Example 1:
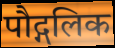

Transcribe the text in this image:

पौद्गलिक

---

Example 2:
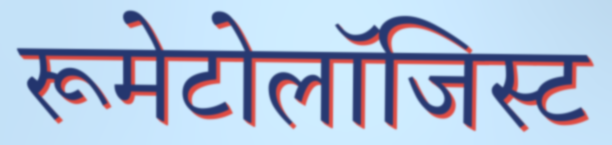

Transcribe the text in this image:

रूमेटोलॉजिस्ट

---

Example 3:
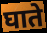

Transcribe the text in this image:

घाते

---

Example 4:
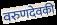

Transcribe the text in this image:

वरुणदेवकी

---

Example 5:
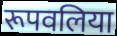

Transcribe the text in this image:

रूपवलिया